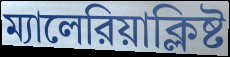
ম্যালেরিয়াক্লিষ্ট